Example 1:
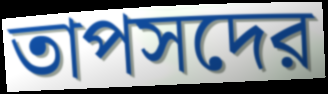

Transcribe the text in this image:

তাপসদের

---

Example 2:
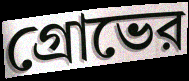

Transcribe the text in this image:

গ্রোভের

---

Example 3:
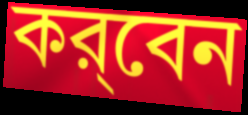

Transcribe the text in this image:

কর্‌বেন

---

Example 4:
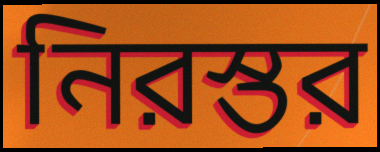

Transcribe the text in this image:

নিরস্তর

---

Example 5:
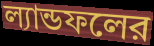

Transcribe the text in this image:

ল্যান্ডফলের